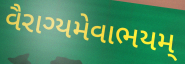
વૈરાગ્યમેવાભયમ્